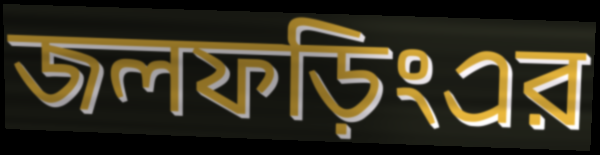
জলফড়িংএর